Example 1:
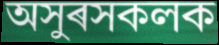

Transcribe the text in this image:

অসুৰসকলক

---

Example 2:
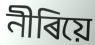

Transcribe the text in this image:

নীৰিয়ে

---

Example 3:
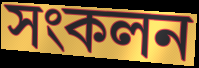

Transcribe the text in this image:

সংকলন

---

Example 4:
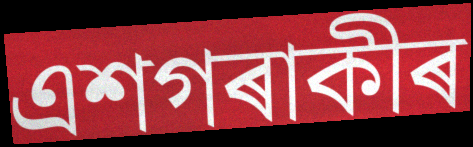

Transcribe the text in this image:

এশগৰাকীৰ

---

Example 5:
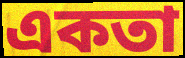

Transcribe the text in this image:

একতা